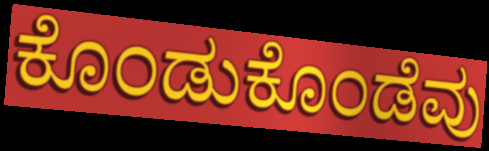
ಕೊಂಡುಕೊಂಡೆವು